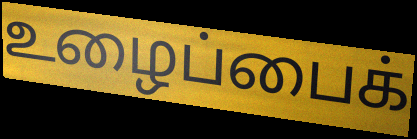
உழைப்பைக்